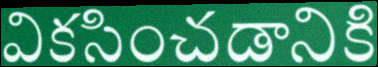
వికసించడానికి